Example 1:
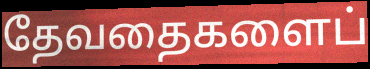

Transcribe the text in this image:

தேவதைகளைப்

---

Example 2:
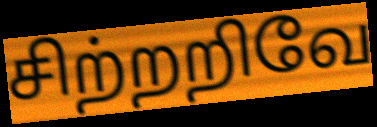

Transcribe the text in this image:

சிற்றறிவே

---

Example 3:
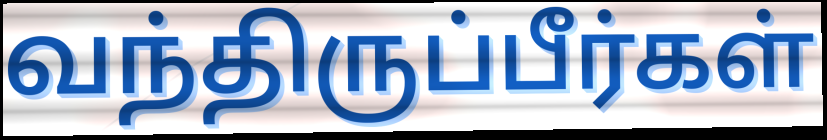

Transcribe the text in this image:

வந்திருப்பீர்கள்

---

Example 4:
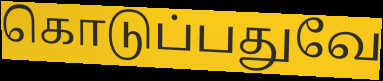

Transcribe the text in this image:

கொடுப்பதுவே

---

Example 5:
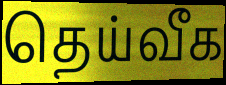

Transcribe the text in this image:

தெய்வீக